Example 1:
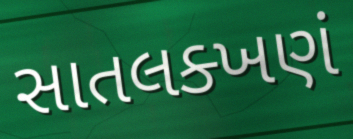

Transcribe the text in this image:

સાતલક્ખણં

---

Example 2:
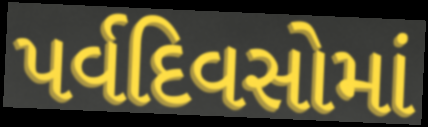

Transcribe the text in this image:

પર્વદિવસોમાં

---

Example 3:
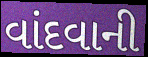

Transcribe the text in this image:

વાંદવાની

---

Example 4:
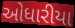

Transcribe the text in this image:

ઓધારીયા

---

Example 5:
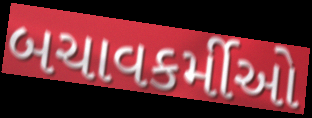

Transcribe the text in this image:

બચાવકર્મીઓ